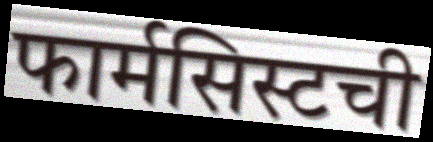
फार्मसिस्टची